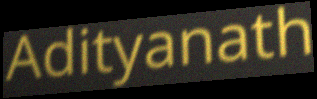
Adityanath